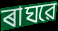
ৰাঘৱে